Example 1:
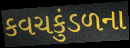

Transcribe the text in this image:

કવચકુંડળના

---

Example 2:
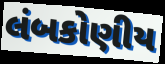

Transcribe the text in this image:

લંબકોણીય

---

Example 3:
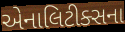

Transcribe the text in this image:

એનાલિટીક્સના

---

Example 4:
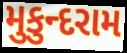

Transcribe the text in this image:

મુકુન્દરામ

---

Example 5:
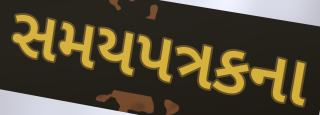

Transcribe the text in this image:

સમયપત્રકના